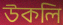
উকলি